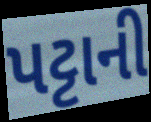
પટ્ટાની